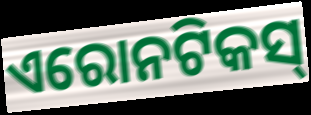
ଏରୋନଟିକସ୍